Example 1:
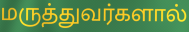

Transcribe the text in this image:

மருத்துவர்களால்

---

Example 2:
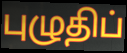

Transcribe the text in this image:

புழுதிப்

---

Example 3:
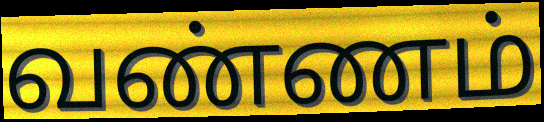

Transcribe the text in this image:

வண்ணம்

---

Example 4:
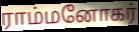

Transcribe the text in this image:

ராம்மனோகர்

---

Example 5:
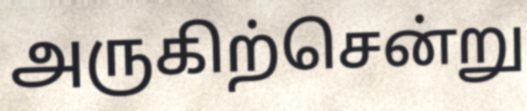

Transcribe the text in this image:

அருகிற்சென்று